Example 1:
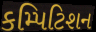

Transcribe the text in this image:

કમ્પિટિશન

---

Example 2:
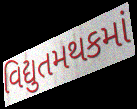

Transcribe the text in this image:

વિદ્યુતમથકમાં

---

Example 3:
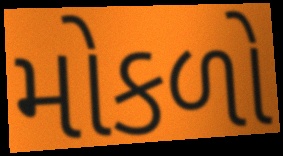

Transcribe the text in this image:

મોકળો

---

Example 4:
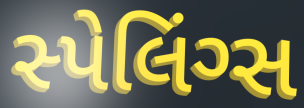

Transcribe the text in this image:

સ્પેલિંગ્સ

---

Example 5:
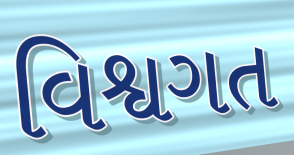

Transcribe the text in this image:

વિશ્વગત